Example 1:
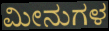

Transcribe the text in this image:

ಮೀನುಗಳ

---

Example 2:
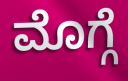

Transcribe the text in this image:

ಮೊಗ್ಗೆ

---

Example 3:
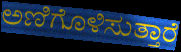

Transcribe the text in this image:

ಅಣಿಗೊಳಿಸುತ್ತಾರೆ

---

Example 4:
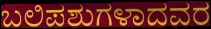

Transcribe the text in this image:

ಬಲಿಪಶುಗಳಾದವರ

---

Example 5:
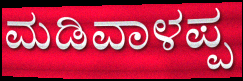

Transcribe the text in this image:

ಮಡಿವಾಳಪ್ಪ